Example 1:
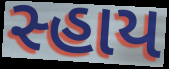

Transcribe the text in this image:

સ્હાય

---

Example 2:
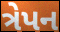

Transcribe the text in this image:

ત્રેપન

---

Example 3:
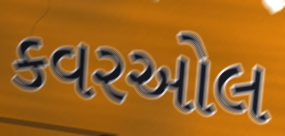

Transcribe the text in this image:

કવરઓલ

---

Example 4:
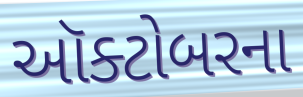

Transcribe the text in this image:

ઑક્ટોબરના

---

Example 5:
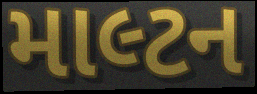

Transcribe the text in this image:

માલ્ટન